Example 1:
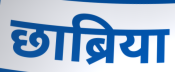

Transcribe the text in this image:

छाब्रिया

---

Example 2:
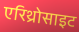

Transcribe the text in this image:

एरिथ्रोसाइट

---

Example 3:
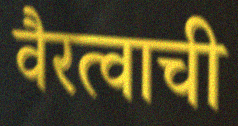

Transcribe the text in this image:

वैरत्वाची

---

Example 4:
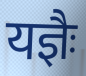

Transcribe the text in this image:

यज्ञैः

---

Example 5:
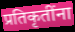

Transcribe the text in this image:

प्रतिकृतींना